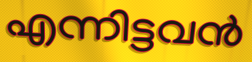
എന്നിട്ടവൻ